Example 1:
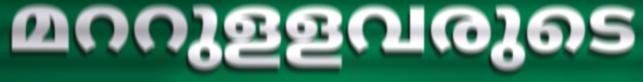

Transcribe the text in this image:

മററുളളവരുടെ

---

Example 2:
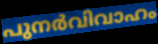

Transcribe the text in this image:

പുനർവിവാഹം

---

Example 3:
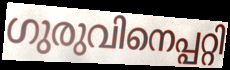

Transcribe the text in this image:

ഗുരുവിനെപ്പറ്റി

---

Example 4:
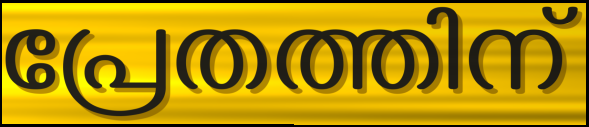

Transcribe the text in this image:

പ്രേതത്തിന്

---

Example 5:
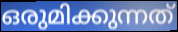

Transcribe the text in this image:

ഒരുമിക്കുന്നത്